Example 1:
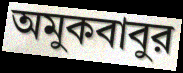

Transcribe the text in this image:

অমুকবাবুর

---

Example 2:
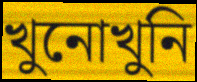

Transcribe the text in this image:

খুনোখুনি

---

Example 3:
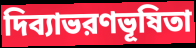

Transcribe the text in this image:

দিব্যাভরণভূষিতা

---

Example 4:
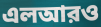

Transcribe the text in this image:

এলআরও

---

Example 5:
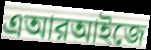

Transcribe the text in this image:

এআরআইজে